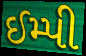
ઈમ્પી